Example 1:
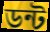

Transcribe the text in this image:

ডন্ট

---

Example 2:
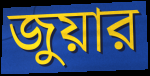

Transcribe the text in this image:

জুয়ার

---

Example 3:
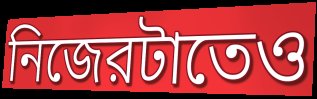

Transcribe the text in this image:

নিজেরটাতেও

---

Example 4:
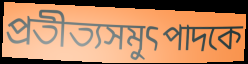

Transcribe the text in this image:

প্রতীত্যসমুৎপাদকে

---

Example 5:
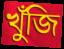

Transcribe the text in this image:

খুঁজি